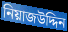
নিয়াজউদ্দিন